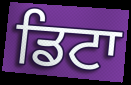
ਡਿਟਾ